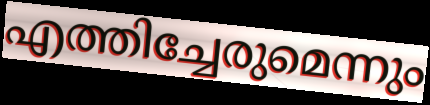
എത്തിച്ചേരുമെന്നും